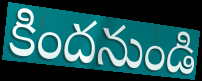
కిందనుండి